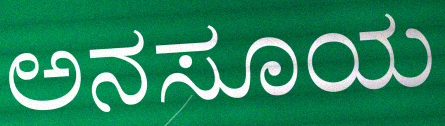
ಅನಸೂಯ